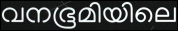
വനഭൂമിയിലെ